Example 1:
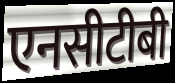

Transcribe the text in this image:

एनसीटीबी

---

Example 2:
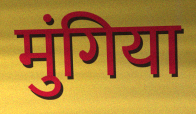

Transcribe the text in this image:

मुंगिया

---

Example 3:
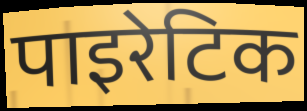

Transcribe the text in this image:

पाइरेटिक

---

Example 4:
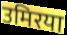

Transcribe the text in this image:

उमिरया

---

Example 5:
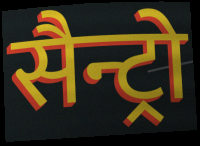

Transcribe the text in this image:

सैन्ट्रो